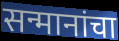
सन्मानांचा